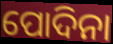
ପୋଦିନା